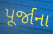
પૂર્જાના